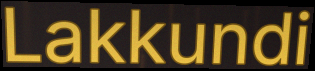
Lakkundi